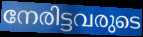
നേരിട്ടവരുടെ